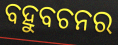
ବହୁବଚନର